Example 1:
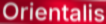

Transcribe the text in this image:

Orientalis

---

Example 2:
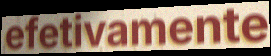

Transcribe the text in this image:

efetivamente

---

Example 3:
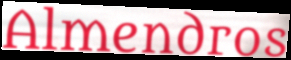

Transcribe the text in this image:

Almendros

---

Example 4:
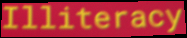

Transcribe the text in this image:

Illiteracy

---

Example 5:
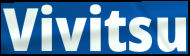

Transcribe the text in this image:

Vivitsu